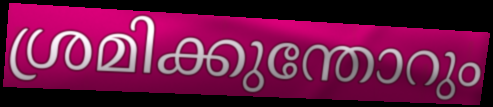
ശ്രമിക്കുന്തോറും